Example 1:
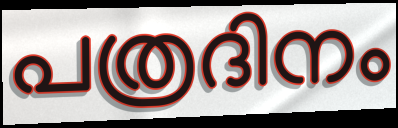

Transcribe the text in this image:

പത്രദിനം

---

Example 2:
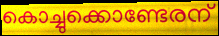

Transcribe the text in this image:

കൊച്ചുക്കൊണ്ടേരന്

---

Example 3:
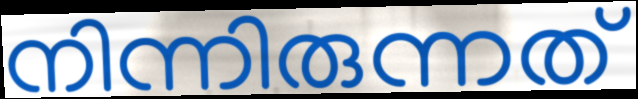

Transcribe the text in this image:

നിന്നിരുന്നത്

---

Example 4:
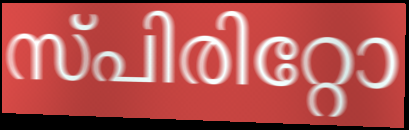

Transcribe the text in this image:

സ്പിരിറ്റോ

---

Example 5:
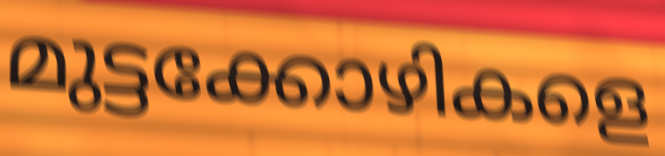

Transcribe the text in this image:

മുട്ടക്കോഴികളെ